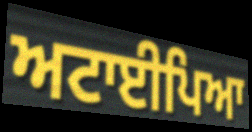
ਅਟਾਈਪਿਆ